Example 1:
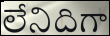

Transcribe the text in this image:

లేనిదిగా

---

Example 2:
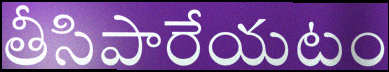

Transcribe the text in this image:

తీసిపారేయటం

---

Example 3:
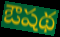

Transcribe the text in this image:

ఔషథ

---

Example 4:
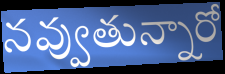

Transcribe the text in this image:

నవ్వుతున్నారో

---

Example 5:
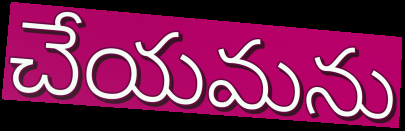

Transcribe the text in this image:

చేయమను